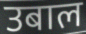
उबाल